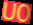
UO